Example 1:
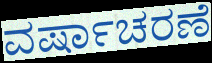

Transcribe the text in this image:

ವರ್ಷಾಚರಣೆ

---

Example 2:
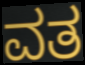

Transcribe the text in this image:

ವತ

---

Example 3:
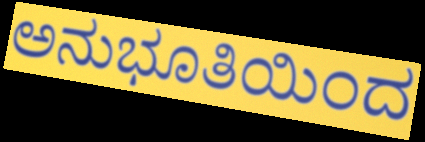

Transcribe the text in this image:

ಅನುಭೂತಿಯಿಂದ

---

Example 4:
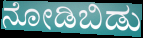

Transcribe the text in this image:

ನೋಡಿಬಿಡು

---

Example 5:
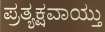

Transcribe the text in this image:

ಪ್ರತ್ಯಕ್ಷವಾಯ್ತು